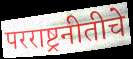
परराष्ट्रनीतीचे